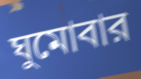
ঘুমোবার